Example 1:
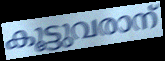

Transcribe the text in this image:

കൂട്ടുവരാന്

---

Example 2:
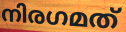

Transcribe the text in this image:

നിരഗമത്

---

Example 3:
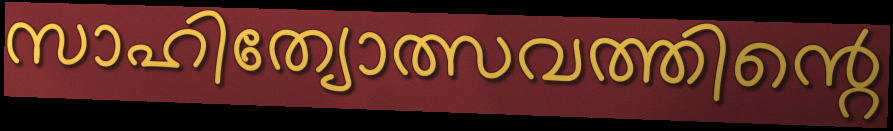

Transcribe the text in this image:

സാഹിത്യോത്സവത്തിന്റെ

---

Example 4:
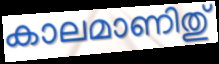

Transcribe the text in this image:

കാലമാണിതു്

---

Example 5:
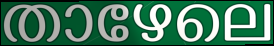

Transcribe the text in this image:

താഴേലെ